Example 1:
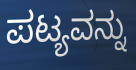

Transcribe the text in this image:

ಪಟ್ಯವನ್ನು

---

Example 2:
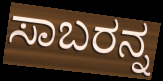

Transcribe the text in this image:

ಸಾಬರನ್ನ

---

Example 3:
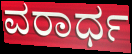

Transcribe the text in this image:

ವರಾರ್ಧ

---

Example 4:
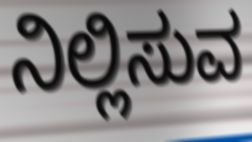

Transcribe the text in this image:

ನಿಲ್ಲಿಸುವ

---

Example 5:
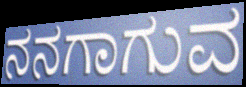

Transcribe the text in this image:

ನನಗಾಗುವ